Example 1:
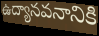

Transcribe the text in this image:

ఉద్యానవనానికి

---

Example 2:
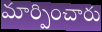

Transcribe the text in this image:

మార్పించారు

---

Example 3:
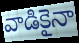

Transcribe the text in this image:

వాడికైనా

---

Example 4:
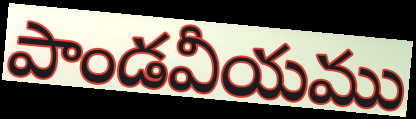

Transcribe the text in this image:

పాండవీయము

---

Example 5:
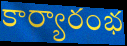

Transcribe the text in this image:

కార్యారంభ